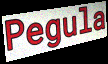
Pegula